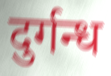
दुर्गन्ध